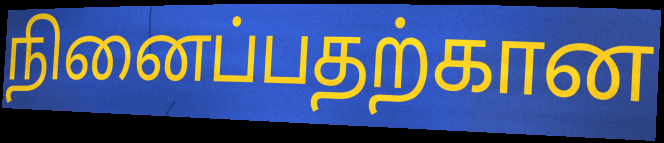
நினைப்பதற்கான